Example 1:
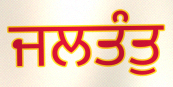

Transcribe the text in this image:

ਜਲਤੰਤੁ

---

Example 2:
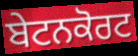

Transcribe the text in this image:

ਬੇਟਨਕੋਰਟ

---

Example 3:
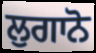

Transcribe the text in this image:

ਲੁਗਾਨੋ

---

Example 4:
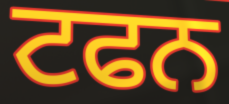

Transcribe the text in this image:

ਟਫਨ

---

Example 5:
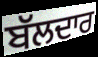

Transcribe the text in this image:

ਬੱਲਦਾਰ